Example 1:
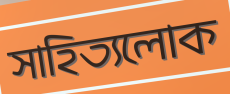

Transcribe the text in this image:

সাহিত্যলোক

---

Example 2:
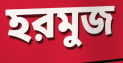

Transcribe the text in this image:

হরমুজ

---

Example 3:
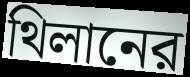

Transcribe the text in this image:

থিলানের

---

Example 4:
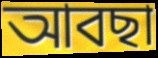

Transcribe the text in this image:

আবছা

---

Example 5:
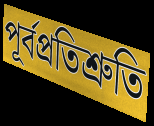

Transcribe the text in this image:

পূর্বপ্রতিশ্রুতি